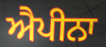
ਐਪੀਨਾ